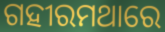
ଗହୀରମଥାରେ